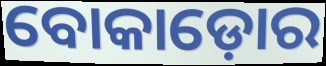
ବୋକାଡ଼ୋର